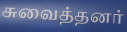
சுவைத்தனர்